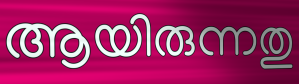
ആയിരുന്നതു